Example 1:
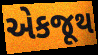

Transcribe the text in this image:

એકજૂથ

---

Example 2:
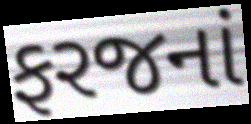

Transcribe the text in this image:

ફરજનાં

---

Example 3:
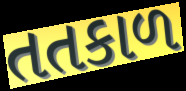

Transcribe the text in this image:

તતકાળ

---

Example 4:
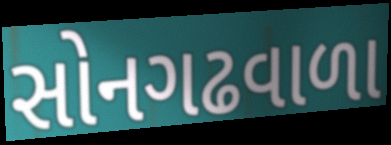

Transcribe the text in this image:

સોનગઢવાળા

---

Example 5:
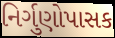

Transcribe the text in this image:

નિર્ગુણોપાસક